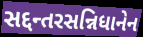
સદ્દન્તરસન્નિધાનેન